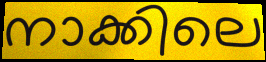
നാക്കിലെ